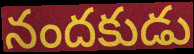
నందకుడు